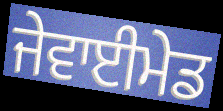
ਜੇਵਾਈਮੇਡ